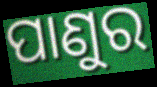
ପାଣୁର